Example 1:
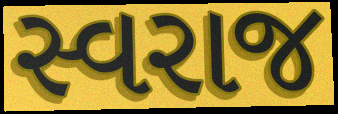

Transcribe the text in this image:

સ્વરાજ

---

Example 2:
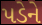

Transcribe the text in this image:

પડેને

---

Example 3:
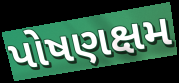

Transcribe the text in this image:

પોષણક્ષમ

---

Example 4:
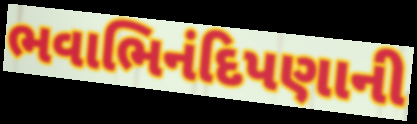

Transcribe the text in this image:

ભવાભિનંદિપણાની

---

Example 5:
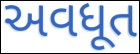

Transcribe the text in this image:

અવધૂત